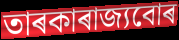
তাৰকাৰাজ্যবোৰ